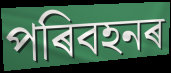
পৰিবহনৰ